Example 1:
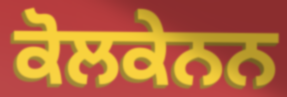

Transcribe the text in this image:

ਕੋਲਕੇਨਨ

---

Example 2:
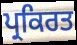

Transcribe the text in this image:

ਪ੍ਰਕਿਰਤ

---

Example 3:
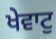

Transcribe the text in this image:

ਖੇਵਾਟੁ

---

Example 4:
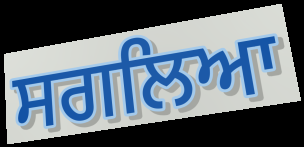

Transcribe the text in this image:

ਸਗਲਿਆ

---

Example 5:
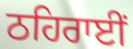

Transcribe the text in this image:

ਠਹਿਰਾਈਂ